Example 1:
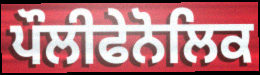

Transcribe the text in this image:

ਪੌਲੀਫੇਨੋਲਿਕ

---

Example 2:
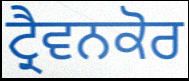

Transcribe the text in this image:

ਟ੍ਰੈਵਨਕੋਰ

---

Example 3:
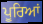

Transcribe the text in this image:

ਪੂਰਿਆਂ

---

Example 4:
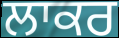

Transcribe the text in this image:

ਲਾਕਰ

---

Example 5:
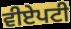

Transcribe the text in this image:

ਵੀਏਪਟੀ